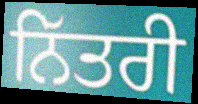
ਨਿੱਤਰੀ